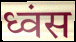
ध्वंस